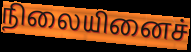
நிலையினைச்